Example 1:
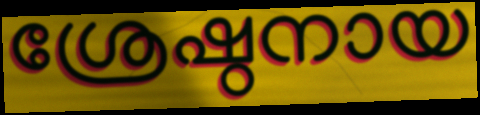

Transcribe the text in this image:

ശ്രേഷ്ഠനായ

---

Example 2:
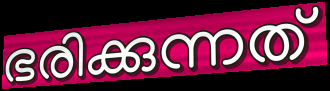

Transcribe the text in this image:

ഭരിക്കുന്നത്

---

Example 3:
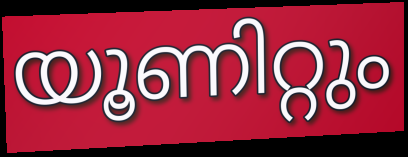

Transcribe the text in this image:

യൂണിറ്റും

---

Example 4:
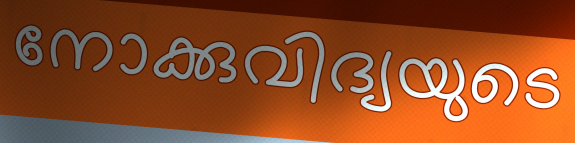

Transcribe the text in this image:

നോക്കുവിദ്യയുടെ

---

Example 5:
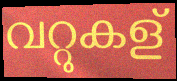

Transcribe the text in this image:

വറ്റുകള്